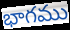
భాగము